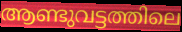
ആണ്ടുവട്ടത്തിലെ